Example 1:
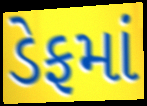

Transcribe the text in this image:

ડેફમાં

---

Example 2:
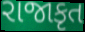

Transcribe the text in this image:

રાજાકૃત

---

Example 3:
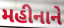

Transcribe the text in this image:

મહીનાને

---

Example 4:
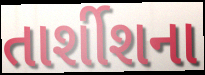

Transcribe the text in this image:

તાર્શીશના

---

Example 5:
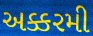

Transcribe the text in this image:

અક્કરમી